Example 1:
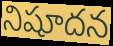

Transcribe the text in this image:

నిషూదన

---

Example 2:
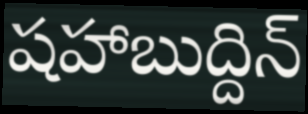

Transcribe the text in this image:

షహాబుద్దిన్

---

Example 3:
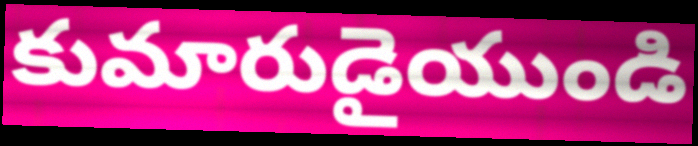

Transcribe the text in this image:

కుమారుడైయుండి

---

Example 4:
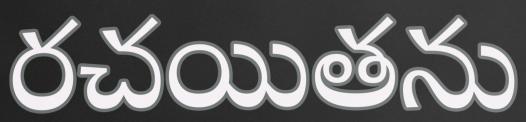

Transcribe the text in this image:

రచయితను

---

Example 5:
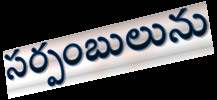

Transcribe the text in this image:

సర్పంబులును